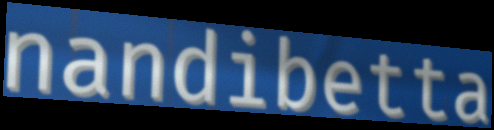
nandibetta